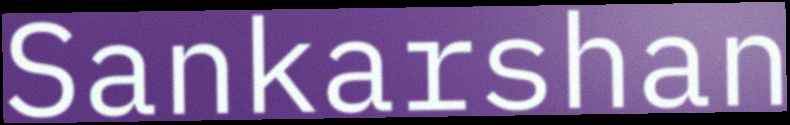
Sankarshan